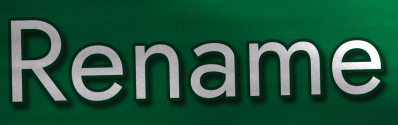
Rename